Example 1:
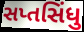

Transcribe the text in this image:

સપ્તસિંધુ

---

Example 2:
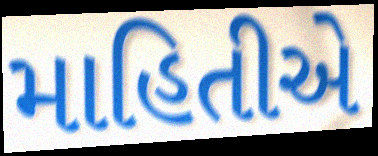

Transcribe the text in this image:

માહિતીએ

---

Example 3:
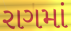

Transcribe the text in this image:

રાગમાં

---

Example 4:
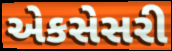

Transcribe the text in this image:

એકસેસરી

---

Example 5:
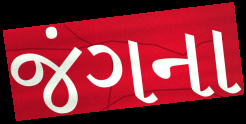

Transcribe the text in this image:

જંગના